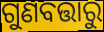
ଗୁଣବତ୍ତାରୁ